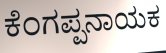
ಕೆಂಗಪ್ಪನಾಯಕ